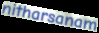
nitharsanam